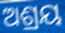
ଅଶ୍ରୟ